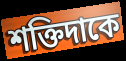
শক্তিদাকে